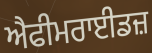
ਐਫੀਮਰਾਈਡਜ਼